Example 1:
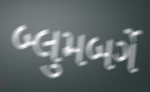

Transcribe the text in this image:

બ્લુમબર્ગે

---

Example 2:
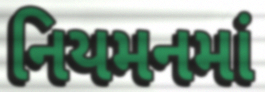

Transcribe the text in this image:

નિયમનમાં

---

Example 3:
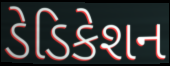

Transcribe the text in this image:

ડેડિકેશન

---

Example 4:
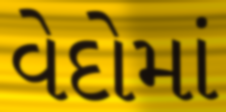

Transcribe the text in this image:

વેદોમાં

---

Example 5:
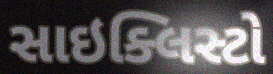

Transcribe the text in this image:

સાઇક્લિસ્ટો